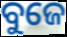
ବୁଜେ